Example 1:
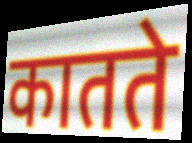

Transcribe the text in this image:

कातते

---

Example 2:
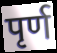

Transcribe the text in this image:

पृर्ण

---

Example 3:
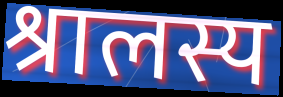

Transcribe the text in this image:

श्रालस्य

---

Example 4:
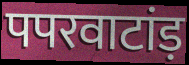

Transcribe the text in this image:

पपरवाटांड़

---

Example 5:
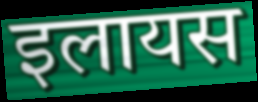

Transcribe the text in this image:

इलायस